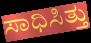
ಸಾಧಿಸಿತ್ತು